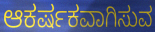
ಆಕರ್ಷಕವಾಗಿಸುವ